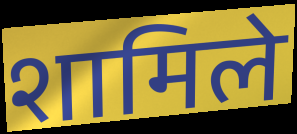
शामिले